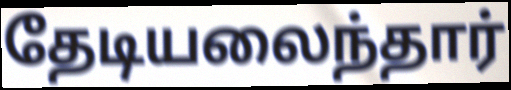
தேடியலைந்தார்